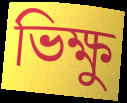
ভিক্ষু